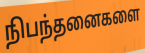
நிபந்தனைகளை